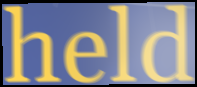
held